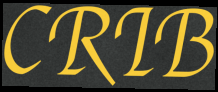
CRIB